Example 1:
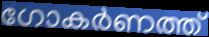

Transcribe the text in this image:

ഗോകർണത്ത്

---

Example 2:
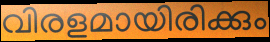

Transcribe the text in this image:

വിരളമായിരിക്കും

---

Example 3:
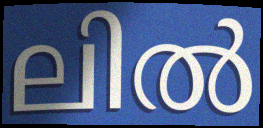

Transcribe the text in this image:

ലിൽ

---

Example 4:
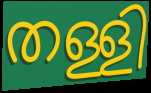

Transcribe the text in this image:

തള്ളി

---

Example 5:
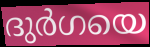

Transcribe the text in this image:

ദുർഗയെ